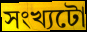
সংখ্যটো